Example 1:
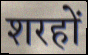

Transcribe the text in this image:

शरहों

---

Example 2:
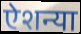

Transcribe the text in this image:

ऐशन्या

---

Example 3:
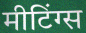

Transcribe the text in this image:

मीटिंग्स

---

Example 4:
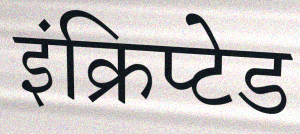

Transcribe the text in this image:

इंक्रिप्टेड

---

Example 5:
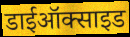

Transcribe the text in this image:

डाईऑक्साइड